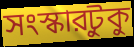
সংস্কারটুকু